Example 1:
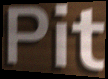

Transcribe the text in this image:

Pit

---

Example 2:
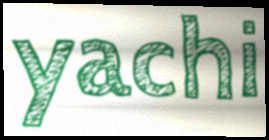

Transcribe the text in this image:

yachi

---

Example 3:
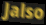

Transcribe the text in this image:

Jalso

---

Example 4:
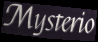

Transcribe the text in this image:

Mysterio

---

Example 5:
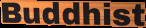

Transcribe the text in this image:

Buddhist